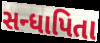
સન્ધાપિતા